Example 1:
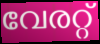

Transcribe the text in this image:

വേരറ്റ്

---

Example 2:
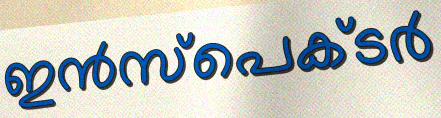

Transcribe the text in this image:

ഇൻസ്പെക്ടർ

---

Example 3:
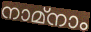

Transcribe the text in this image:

നാമ്നാം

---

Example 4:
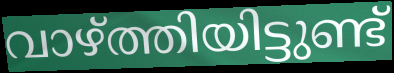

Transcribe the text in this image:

വാഴ്ത്തിയിട്ടുണ്ട്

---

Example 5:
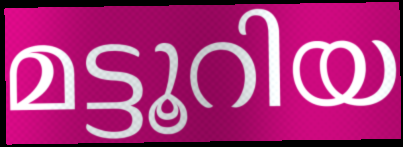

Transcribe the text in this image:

മട്ടൂറിയ